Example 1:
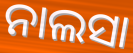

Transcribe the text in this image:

ନାଲସା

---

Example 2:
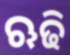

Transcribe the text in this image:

ଋଢି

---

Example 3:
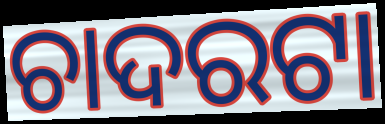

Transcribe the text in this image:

ଚାଦରଟା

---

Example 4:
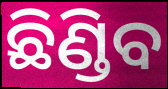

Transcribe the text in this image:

ଛିଣ୍ଡିବ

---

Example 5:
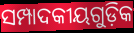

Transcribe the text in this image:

ସମ୍ପାଦକୀୟଗୁଡ଼ିକ